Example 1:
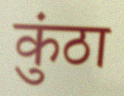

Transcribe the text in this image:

कुंठा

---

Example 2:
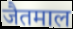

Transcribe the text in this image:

जैतमाल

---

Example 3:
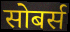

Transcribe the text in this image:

सोबर्स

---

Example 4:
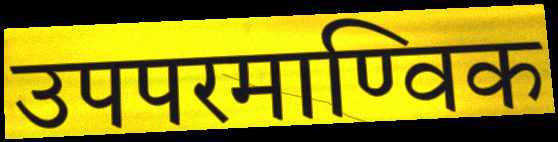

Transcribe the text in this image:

उपपरमाण्विक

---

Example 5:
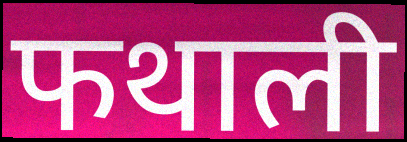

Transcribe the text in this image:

फथाली